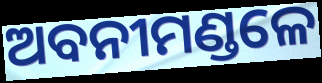
ଅବନୀମଣ୍ଡଳେ